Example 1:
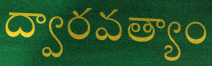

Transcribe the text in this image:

ద్వారవత్యాం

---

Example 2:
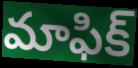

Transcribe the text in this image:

మాఫిక్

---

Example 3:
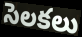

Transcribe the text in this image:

సెలకలు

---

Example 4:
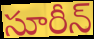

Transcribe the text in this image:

సూరీన్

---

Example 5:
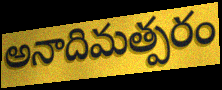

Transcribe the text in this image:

అనాదిమత్పరం